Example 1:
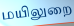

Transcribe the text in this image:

மயிலுறை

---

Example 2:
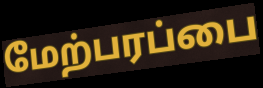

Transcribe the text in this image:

மேற்பரப்பை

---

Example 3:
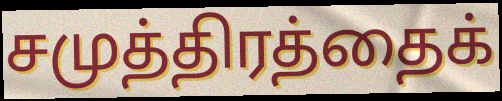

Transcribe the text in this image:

சமுத்திரத்தைக்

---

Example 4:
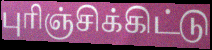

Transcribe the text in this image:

புரிஞ்சிக்கிட்டு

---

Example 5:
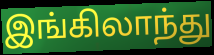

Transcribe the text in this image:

இங்கிலாந்து